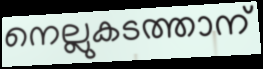
നെല്ലുകടത്താന്